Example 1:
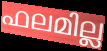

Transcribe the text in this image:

ഫലമില്ല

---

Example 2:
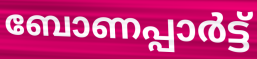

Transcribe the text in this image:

ബോണപ്പാർട്ട്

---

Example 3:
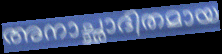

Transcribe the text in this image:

അനാച്ഛാദിതമായ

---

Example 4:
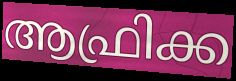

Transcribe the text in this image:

ആഫ്രിക്ക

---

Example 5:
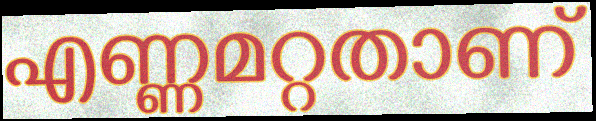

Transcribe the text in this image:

എണ്ണമറ്റതാണ്